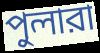
পুলারা